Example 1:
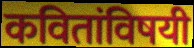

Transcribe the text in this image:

कवितांविषयी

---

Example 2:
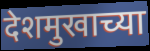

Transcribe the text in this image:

देशमुखाच्या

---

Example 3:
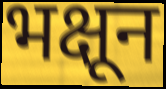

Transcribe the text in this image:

भक्षून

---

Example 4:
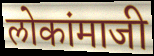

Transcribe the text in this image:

लोकांमाजी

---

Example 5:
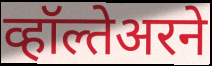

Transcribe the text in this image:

व्हॉल्तेअरने